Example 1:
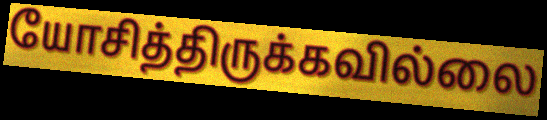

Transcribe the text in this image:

யோசித்திருக்கவில்லை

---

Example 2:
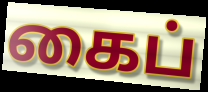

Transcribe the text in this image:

கைப்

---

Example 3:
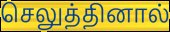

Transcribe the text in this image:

செலுத்தினால்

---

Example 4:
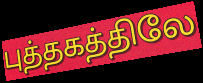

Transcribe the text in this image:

புத்தகத்திலே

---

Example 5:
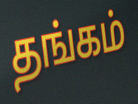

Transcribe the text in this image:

தங்கம்